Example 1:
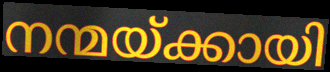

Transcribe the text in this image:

നന്മയ്ക്കായി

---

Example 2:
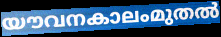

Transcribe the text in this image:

യൗവനകാലംമുതൽ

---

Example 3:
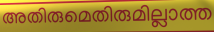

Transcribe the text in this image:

അതിരുമെതിരുമില്ലാത്ത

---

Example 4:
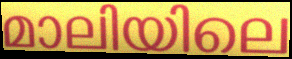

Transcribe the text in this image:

മാലിയിലെ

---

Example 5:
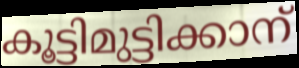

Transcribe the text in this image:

കൂട്ടിമുട്ടിക്കാന്